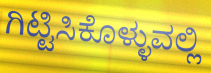
ಗಿಟ್ಟಿಸಿಕೊಳ್ಳುವಲ್ಲಿ